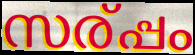
സര്പ്പം